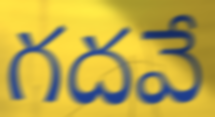
గదవే